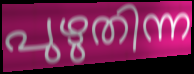
പുഴുതിന്ന